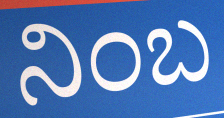
ನಿಂಬ